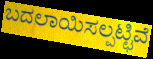
ಬದಲಾಯಿಸಲ್ಪಟ್ಟಿವೆ